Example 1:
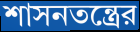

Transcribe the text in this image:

শাসনতন্ত্রের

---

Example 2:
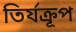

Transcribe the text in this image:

তির্যক্রূপ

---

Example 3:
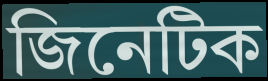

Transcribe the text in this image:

জিনেটিক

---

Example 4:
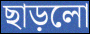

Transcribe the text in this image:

ছাড়লো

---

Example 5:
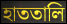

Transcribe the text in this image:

হাততালি